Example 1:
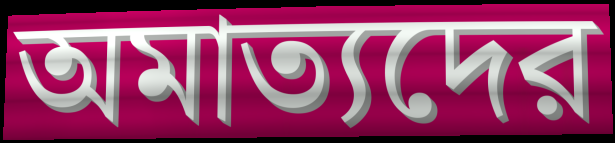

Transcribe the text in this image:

অমাত্যদের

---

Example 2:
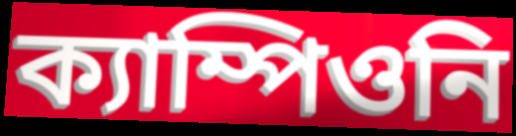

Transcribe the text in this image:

ক্যাম্পিওনি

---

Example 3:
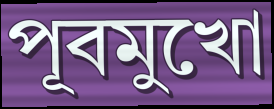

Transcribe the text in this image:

পূবমুখো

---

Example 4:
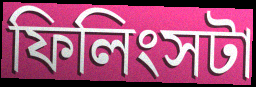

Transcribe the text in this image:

ফিলিংসটা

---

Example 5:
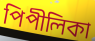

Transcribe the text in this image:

পিপীলিকা